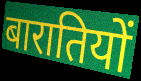
बारातियों